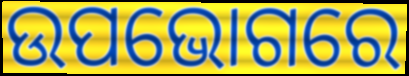
ଉପଭୋଗରେ